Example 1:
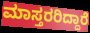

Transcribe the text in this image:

ಮಾಸ್ತರರಿದ್ದಾರೆ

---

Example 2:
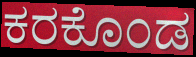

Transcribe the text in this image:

ಕರಕೊಂಡ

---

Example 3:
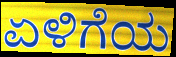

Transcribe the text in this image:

ಏಳಿಗೆಯ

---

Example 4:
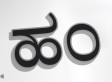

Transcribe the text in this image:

ಹಂ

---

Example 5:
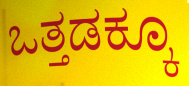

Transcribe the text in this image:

ಒತ್ತಡಕ್ಕೂ